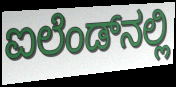
ಐಲೆಂಡ್‌ನಲ್ಲಿ